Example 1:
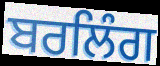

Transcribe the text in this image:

ਬਰਲਿੰਗ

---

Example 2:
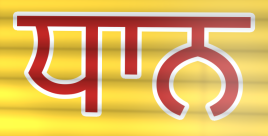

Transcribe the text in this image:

ਧਾਨ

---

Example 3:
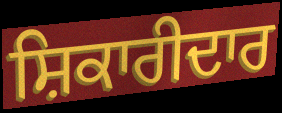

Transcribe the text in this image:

ਸ਼ਿਕਾਰੀਦਾਰ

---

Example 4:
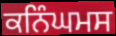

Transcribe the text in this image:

ਕਨਿੰਘਮਸ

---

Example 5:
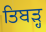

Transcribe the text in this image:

ਤਿਬੜ੍ਹ